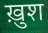
ख़ुश